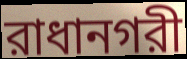
রাধানগরী